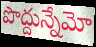
పొద్దున్నేమో